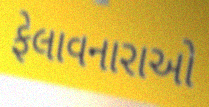
ફેલાવનારાઓ